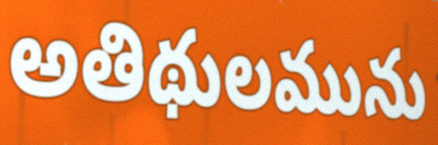
అతిథులమును